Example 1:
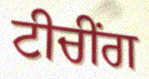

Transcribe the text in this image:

ਟੀਚੀਂਗ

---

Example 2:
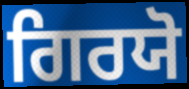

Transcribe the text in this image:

ਗਿਰਯੋ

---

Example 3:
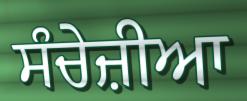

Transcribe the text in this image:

ਸੰਚੇਜ਼ੀਆ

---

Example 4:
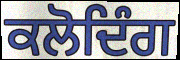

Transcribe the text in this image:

ਕਲੋਦਿੰਗ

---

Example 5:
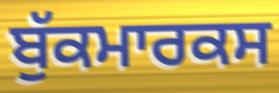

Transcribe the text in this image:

ਬੁੱਕਮਾਰਕਸ